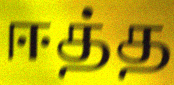
ஈத்த